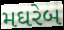
મઘરેબ